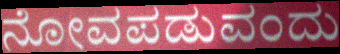
ನೋವಪಡುವಂದು